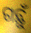
ଗଛୁଁ